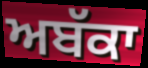
ਅਬੱਕਾ